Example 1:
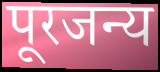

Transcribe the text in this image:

पूरजन्य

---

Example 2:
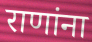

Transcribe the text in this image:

राणांना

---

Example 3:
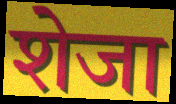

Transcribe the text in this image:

शेजा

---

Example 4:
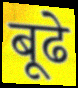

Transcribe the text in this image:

बूढे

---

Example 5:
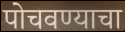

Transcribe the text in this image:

पोचवण्याचा